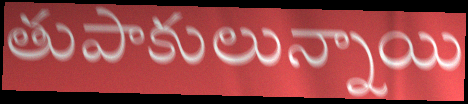
తుపాకులున్నాయి